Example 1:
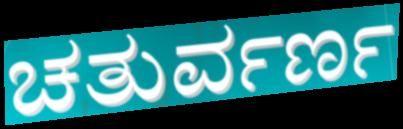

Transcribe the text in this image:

ಚತುರ್ವರ್ಣ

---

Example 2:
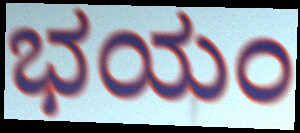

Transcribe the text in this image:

ಭಯಂ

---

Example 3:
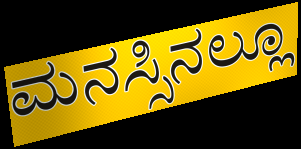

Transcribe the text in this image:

ಮನಸ್ಸಿನಲ್ಲೂ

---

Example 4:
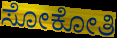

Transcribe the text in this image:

ಸೋಕೋತಿ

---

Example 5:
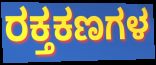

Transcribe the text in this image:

ರಕ್ತಕಣಗಳ